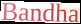
Bandha